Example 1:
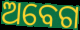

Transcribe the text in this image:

ଅବେଗ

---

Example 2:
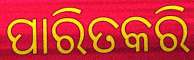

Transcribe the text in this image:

ପାରିତକରି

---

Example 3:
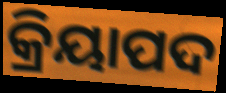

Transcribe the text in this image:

କ୍ରିୟାପଦ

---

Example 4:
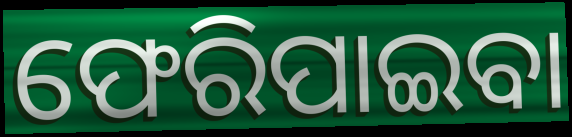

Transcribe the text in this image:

ଫେରିପାଇବା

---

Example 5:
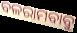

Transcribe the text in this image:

ବଳରାମବାବୁ